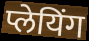
प्लेयिंग